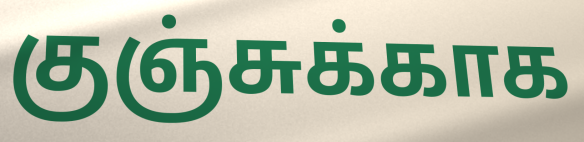
குஞ்சுக்காக